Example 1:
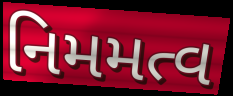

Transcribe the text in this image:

નિમમત્વ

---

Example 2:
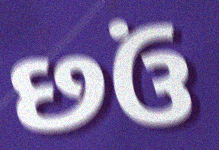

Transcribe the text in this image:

છઉં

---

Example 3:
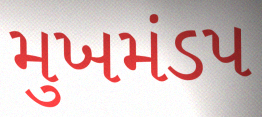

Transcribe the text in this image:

મુખમંડપ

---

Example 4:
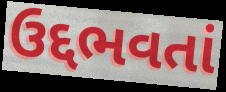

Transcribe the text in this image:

ઉદ્દભવતાં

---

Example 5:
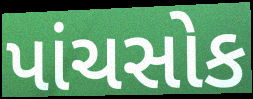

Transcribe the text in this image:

પાંચસોક